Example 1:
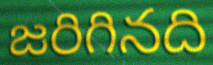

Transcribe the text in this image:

జరిగినది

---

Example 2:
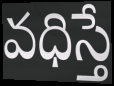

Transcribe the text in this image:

వధిస్తే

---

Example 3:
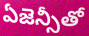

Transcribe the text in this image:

ఏజెన్సీతో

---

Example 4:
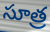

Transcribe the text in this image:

సూత్ర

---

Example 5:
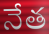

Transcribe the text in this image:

నేత